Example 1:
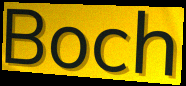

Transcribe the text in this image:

Boch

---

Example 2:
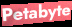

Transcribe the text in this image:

Petabyte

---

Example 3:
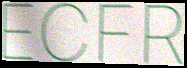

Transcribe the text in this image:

ECFR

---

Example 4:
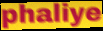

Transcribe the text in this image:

phaliye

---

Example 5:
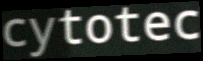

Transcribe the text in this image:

cytotec